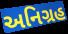
અનિગ્રહ